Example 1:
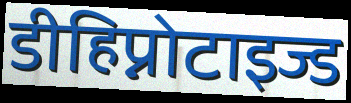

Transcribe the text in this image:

डीहिप्नोटाइज्ड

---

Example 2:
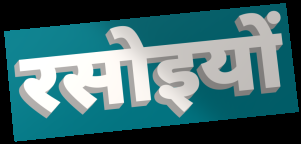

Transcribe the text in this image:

रसोइयों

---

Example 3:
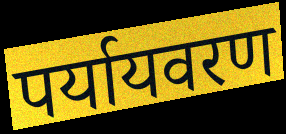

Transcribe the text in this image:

पर्यायवरण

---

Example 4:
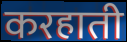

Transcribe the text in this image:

करहाती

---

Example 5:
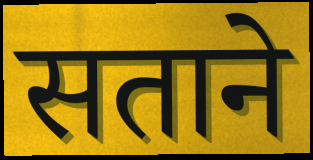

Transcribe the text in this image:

सताने